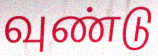
வுண்டு